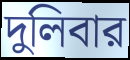
দুলিবার